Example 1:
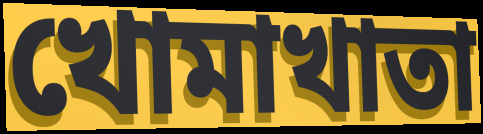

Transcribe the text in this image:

খোমাখাতা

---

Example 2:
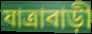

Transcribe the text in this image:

যাত্রাবাড়ী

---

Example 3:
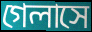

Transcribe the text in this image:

গেলাসে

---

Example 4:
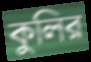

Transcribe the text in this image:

কুলির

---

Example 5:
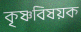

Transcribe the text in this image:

কৃষ্ণবিষয়ক